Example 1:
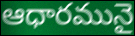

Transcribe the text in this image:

ఆధారమునై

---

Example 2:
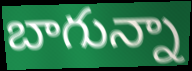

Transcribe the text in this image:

బాగున్నా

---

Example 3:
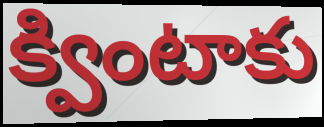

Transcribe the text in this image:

క్వింటాకు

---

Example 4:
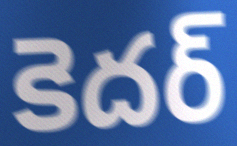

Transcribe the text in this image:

కెదర్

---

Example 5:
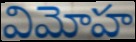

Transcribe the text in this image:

విమోహ